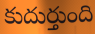
కుదుర్తుంది